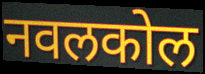
नवलकोल